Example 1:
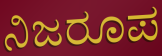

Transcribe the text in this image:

ನಿಜರೂಪ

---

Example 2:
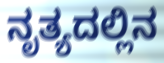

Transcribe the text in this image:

ನೃತ್ಯದಲ್ಲಿನ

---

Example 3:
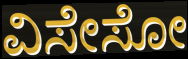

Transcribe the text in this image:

ವಿಸೇಸೋ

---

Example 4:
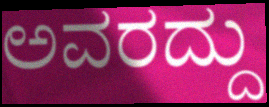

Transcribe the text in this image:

ಅವರದ್ದು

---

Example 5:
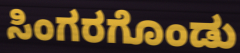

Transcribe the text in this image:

ಸಿಂಗರಗೊಂಡು